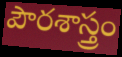
పౌరశాస్త్రం